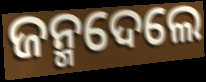
ଜନ୍ମଦେଲେ